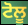
ਟੋਲੂ